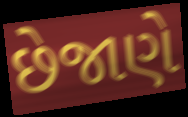
છેજાણે